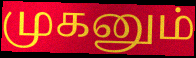
முகனும்